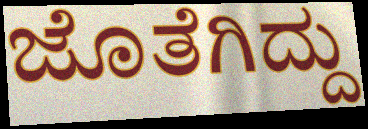
ಜೊತೆಗಿದ್ದು